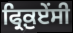
ਫ੍ਰਿਕ਼ੁਏਂਸੀ